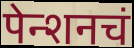
पेन्शनचं